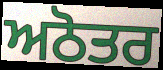
ਅਠੋਤਰ